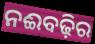
ନଈବଢ଼ିର